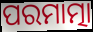
ପରମାତ୍ମା